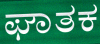
ಘಾತಕ